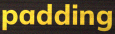
padding